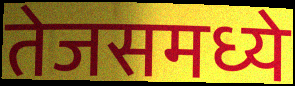
तेजसमध्ये